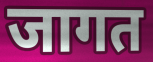
जागत